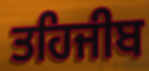
ਤਹਿਜੀਬ